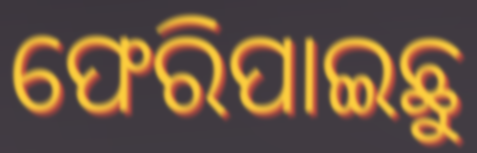
ଫେରିପାଇଛୁ